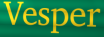
Vesper